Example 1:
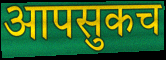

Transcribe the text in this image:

आपसुकच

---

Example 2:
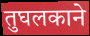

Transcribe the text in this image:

तुघलकाने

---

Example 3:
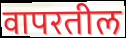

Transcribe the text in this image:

वापरतील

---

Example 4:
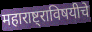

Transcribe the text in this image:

महाराष्ट्राविषयीचे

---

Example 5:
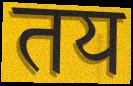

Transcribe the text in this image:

तय